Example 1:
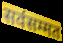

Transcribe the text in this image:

सर्वसम्मत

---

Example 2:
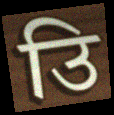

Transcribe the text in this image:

उि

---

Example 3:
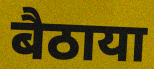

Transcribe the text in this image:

बैठाया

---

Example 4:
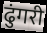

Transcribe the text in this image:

ढुंगरी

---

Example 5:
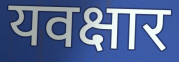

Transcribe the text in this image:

यवक्षार